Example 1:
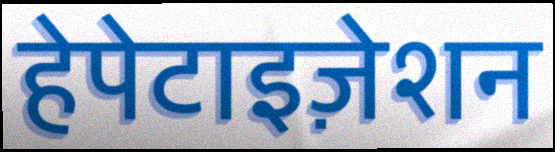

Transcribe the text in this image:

हेपेटाइज़ेशन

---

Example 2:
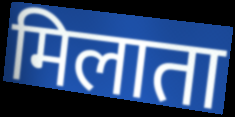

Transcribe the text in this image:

मिलाता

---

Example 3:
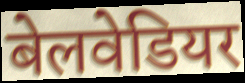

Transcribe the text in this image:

बेलवेडियर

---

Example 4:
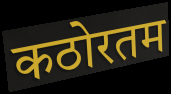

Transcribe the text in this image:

कठोरतम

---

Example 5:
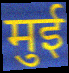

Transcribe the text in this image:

मुई